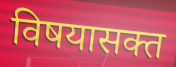
विषयासक्त